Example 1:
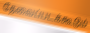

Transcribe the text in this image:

தேவைப்படக்கூடும்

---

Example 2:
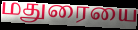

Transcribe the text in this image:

மதுரையை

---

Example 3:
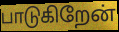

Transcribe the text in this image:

பாடுகிறேன்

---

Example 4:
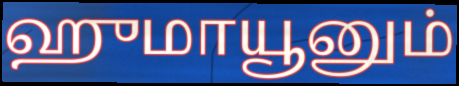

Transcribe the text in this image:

ஹுமாயூனும்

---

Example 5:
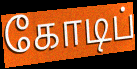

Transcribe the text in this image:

கோடிப்